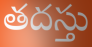
తదస్తు